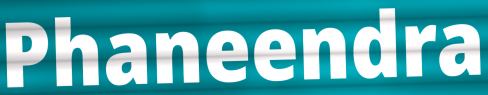
Phaneendra